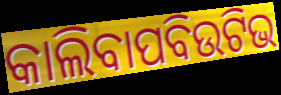
କାଲିବାପବିଉଟିଭ